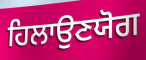
ਹਿਲਾਉਣਯੋਗ